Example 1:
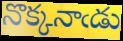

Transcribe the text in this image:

నొక్కనాఁడు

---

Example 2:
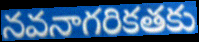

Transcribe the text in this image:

నవనాగరికతకు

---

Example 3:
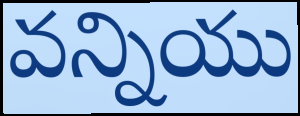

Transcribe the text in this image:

వన్నియు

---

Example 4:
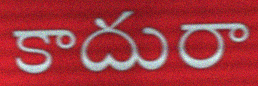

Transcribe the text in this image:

కాదురా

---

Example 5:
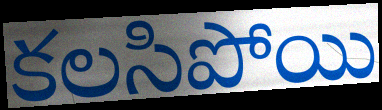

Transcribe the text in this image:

కలసిపోయి